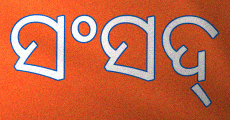
ସଂସଦ୍